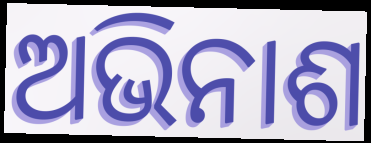
ଅଭିନାଶ